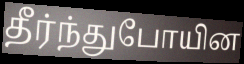
தீர்ந்துபோயின